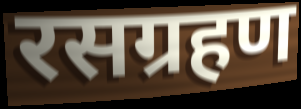
रसग्रहण